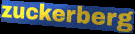
zuckerberg